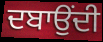
ਦਬਾਉਂਦੀ